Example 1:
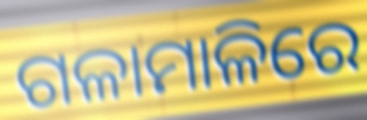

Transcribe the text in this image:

ଗଳାମାଳିରେ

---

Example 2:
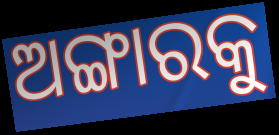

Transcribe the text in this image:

ଅଙ୍ଗାରକୁ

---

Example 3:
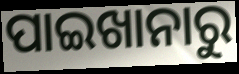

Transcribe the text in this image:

ପାଇଖାନାରୁ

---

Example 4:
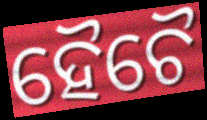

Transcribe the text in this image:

ହୈଚୈ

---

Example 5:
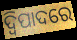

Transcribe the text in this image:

ଦ୍ୱିପାଦରେ